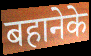
बहानेके